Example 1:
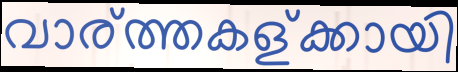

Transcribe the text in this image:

വാര്ത്തകള്ക്കായി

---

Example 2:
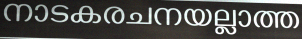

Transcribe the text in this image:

നാടകരചനയല്ലാത്ത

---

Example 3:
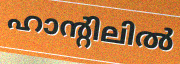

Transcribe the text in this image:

ഹാന്റിലിൽ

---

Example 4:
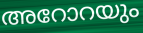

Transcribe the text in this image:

അറോറയും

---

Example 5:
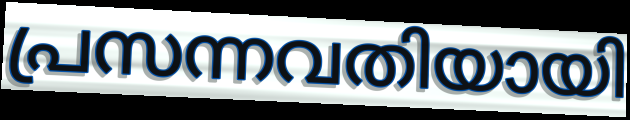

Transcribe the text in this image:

പ്രസന്നവതിയായി